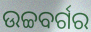
ଉଚ୍ଚବର୍ଗର